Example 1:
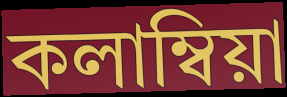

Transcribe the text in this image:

কলাম্বিয়া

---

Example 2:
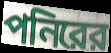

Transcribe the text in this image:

পনিরের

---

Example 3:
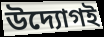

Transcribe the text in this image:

উদ্যোগই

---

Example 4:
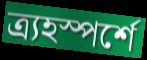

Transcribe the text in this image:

ত্র্যহস্পর্শে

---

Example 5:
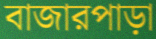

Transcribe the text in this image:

বাজারপাড়া